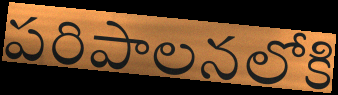
పరిపాలనలోకి